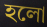
হলো